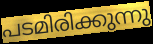
പടമിരിക്കുന്നു